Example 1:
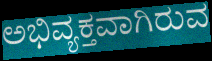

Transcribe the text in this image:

ಅಭಿವ್ಯಕ್ತವಾಗಿರುವ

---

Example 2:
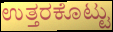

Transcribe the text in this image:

ಉತ್ತರಕೊಟ್ಟು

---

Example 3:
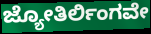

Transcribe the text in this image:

ಜ್ಯೋತಿರ್ಲಿಂಗವೇ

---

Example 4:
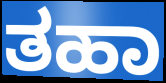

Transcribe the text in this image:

ತಹಾ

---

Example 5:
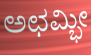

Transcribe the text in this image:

ಅಛಮ್ಭೀ